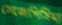
সেজোপিসিমা